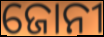
ଜୋନୀ